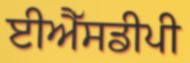
ਈਐੱਸਡੀਪੀ